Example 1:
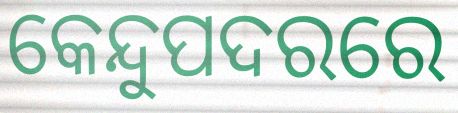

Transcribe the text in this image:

କେନ୍ଦୁପଦରରେ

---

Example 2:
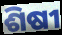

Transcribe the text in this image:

ଶିଷୀ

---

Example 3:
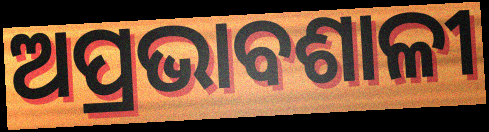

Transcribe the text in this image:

ଅପ୍ରଭାବଶାଳୀ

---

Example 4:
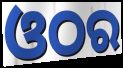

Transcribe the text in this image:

ଓଠର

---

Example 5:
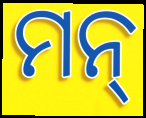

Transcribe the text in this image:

ମନ୍